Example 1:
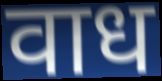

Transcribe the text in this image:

वाध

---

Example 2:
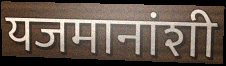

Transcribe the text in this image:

यजमानांशी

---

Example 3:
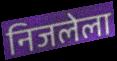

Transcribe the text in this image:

निजलेला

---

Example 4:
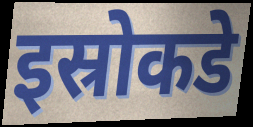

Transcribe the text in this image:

इस्रोकडे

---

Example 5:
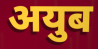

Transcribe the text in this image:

अयुब